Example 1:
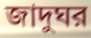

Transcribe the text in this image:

জাদুঘর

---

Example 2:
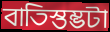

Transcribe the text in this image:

বাতিস্তম্ভটা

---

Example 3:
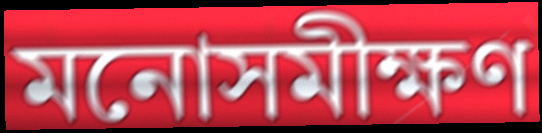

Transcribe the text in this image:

মনোসমীক্ষণ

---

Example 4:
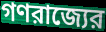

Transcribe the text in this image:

গণরাজ্যের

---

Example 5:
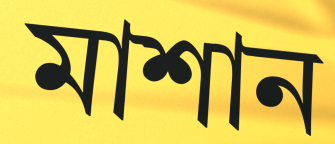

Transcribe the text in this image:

মাশান